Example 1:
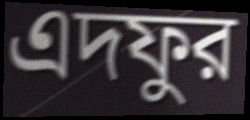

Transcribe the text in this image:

এদফুর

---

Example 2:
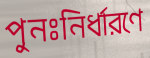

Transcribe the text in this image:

পুনঃনির্ধারণে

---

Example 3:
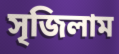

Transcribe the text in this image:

সৃজিলাম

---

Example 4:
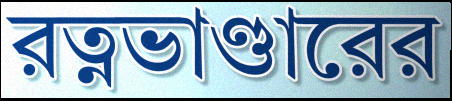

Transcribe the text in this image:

রত্নভাণ্ডারের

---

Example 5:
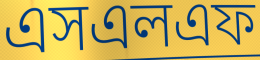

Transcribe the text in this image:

এসএলএফ